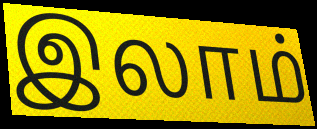
இலாம்